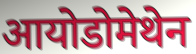
आयोडोमेथेन